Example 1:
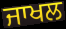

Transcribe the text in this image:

ਜਾਖਲ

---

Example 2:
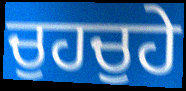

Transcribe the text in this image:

ਚੁਹਚੁਹੇ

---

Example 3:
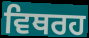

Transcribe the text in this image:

ਵਿਥਰਹ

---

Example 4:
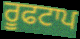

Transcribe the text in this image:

ਰੂਫਟਾਪ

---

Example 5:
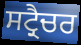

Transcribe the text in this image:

ਸਟ੍ਰੈਚਰ